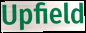
Upfield